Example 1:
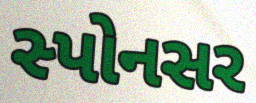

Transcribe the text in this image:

સ્પોનસર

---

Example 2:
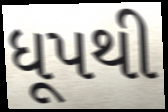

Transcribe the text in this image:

ધૂપથી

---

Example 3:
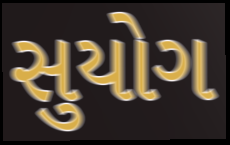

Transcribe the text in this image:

સુયોગ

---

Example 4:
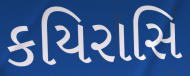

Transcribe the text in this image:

કયિરાસિ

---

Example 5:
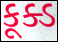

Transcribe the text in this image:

કૂક્ડ